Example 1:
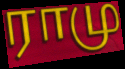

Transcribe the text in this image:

ராமு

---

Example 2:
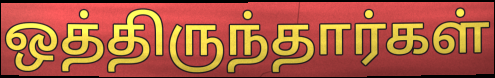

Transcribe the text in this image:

ஒத்திருந்தார்கள்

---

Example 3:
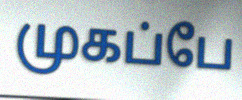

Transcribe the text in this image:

முகப்பே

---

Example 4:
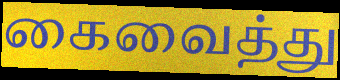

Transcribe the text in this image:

கைவைத்து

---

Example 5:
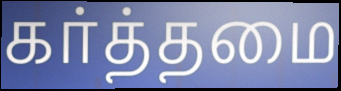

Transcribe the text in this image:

கர்த்தமை